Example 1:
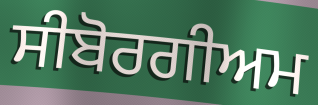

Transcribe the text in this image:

ਸੀਬੋਰਗੀਅਮ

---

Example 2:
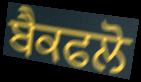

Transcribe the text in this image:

ਬੈਕਫਲੋ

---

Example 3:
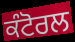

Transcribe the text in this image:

ਕੰਟੋਰਲ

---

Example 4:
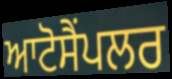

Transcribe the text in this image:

ਆਟੋਸੈਂਪਲਰ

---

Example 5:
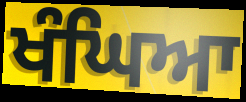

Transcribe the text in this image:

ਖੰਘਿਆ